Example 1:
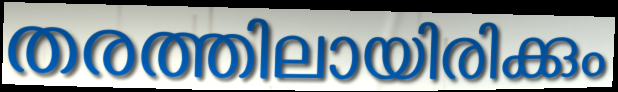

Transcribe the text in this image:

തരത്തിലായിരിക്കും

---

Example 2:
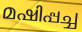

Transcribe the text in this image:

മഷിപ്പച്ച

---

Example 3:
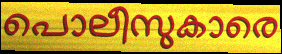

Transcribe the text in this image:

പൊലീസുകാരെ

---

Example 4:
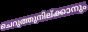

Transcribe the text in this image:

ചെറുത്തുനില്ക്കാനും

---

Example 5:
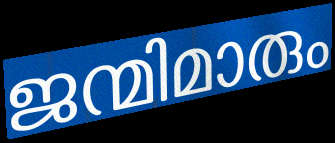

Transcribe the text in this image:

ജന്മിമാരും